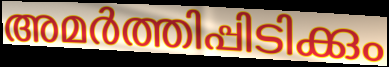
അമർത്തിപ്പിടിക്കും